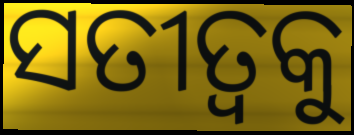
ସତୀତ୍ୱକୁ